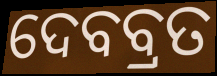
ଦେବବ୍ରତ